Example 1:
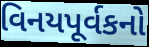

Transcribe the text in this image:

વિનયપૂર્વકનો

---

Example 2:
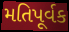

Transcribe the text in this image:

મતિપૂર્વક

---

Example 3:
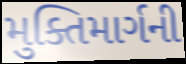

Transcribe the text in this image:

મુક્તિમાર્ગની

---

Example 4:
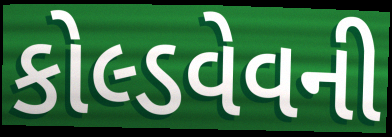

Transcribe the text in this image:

કોલ્ડવેવની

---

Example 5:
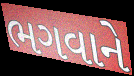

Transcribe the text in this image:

ભગવાને